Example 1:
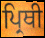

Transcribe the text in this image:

ਪ੍ਰਿਥੀ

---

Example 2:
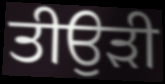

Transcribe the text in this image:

ਤੀਉੜੀ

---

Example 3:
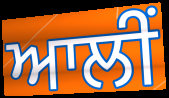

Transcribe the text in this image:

ਆਲੀਂ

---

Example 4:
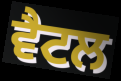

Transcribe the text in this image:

ਵੈਟਲ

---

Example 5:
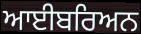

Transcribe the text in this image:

ਆਈਬਰਿਅਨ